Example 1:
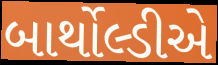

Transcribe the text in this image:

બાર્થોલ્ડીએ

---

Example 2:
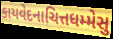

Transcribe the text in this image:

કાયવેદનાચિત્તધમ્મેસુ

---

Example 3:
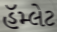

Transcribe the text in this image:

હૅમ્લેટ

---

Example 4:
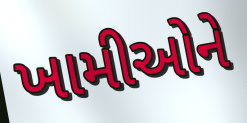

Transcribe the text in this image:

ખામીઓને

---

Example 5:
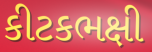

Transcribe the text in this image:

કીટકભક્ષી